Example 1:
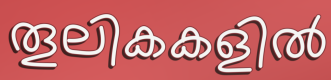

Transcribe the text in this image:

തൂലികകളിൽ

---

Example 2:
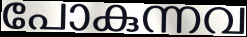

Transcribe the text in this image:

പോകുന്നവ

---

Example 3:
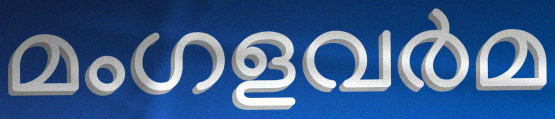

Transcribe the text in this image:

മംഗളവർമ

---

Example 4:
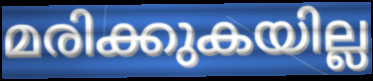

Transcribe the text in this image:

മരിക്കുകയില്ല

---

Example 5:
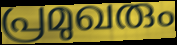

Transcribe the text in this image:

പ്രമുഖരും